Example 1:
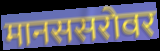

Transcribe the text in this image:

मानससरोवर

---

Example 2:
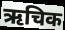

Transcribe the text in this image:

ऋचिक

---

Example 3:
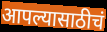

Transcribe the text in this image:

आपल्यासाठीचं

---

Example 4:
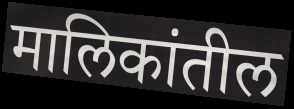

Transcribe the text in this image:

मालिकांतील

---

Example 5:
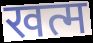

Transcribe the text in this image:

खत्म